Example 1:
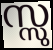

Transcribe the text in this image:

സ്സു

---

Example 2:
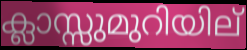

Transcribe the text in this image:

ക്ലാസ്സുമുറിയില്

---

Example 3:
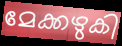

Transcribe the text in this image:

മേക്കഴുകി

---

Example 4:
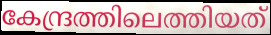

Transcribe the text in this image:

കേന്ദ്രത്തിലെത്തിയത്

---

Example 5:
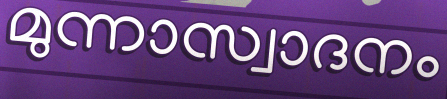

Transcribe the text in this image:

മുന്നാസ്വാദനം